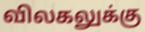
விலகலுக்கு